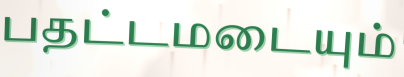
பதட்டமடையும்